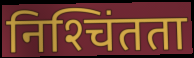
निश्चिंतता